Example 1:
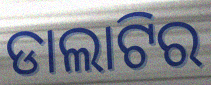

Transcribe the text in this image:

ଡାଲାଟିର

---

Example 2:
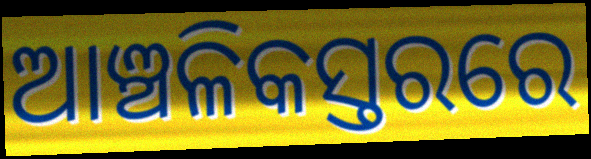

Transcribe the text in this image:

ଆଞ୍ଚଳିକସ୍ତରରେ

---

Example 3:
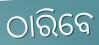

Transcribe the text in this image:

ଠାରିବେ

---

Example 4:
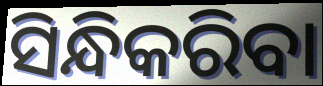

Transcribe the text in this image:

ସିନ୍ଧିକରିବା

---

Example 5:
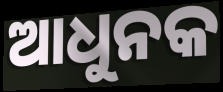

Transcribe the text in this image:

ଆଧୁନକ